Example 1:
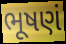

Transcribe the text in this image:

ભૂષણં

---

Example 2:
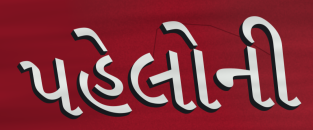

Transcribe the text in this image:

પહેલોની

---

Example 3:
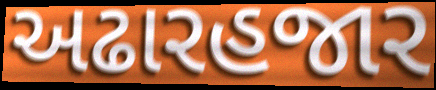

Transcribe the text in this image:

અઢારહજાર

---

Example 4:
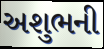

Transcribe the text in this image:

અશુભની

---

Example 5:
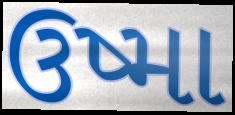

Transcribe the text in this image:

ઉષ્મા